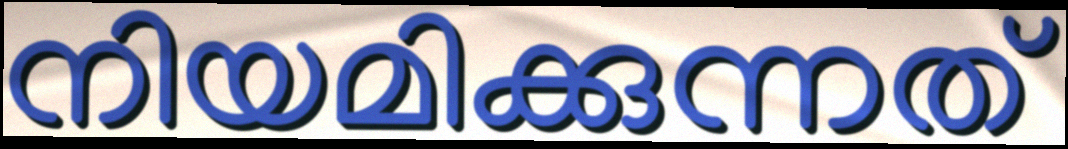
നിയമിക്കുന്നത്